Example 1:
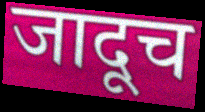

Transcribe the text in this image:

जादूच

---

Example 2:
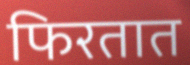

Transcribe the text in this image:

फिरतात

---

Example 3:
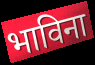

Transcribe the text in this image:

भाविना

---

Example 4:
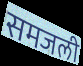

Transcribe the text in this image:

समजली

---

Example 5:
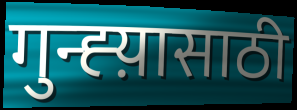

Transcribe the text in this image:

गुन्ह्य़ासाठी